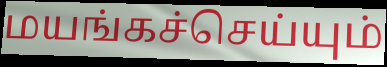
மயங்கச்செய்யும்